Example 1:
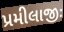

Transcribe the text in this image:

પ્રમીલાજીઃ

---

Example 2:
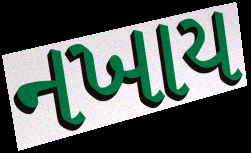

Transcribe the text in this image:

નખાય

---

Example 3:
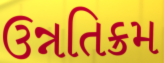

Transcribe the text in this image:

ઉન્નતિક્રમ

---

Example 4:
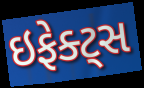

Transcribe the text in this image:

ઇફેક્ટ્સ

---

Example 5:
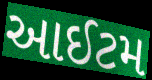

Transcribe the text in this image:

આઈટમ